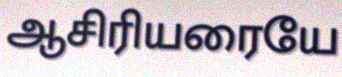
ஆசிரியரையே